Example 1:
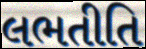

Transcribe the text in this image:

લભતીતિ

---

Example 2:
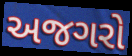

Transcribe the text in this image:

અજગરો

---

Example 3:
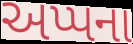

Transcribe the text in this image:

અપ્પના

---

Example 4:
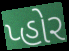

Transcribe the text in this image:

પ્હોર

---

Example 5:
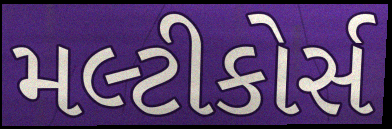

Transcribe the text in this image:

મલ્ટીકોર્સ